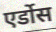
एर्डोस